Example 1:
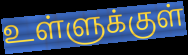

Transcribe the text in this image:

உள்ளுக்குள்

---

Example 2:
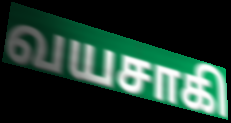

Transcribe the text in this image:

வயசாகி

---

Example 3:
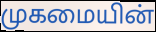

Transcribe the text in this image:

முகமையின்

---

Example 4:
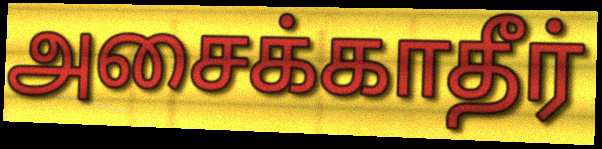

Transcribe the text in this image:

அசைக்காதீர்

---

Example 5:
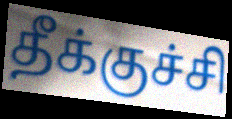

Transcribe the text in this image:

தீக்குச்சி